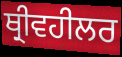
ਥ੍ਰੀਵਹੀਲਰ